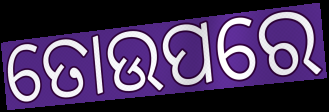
ତୋଉପରେ